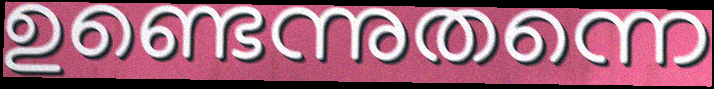
ഉണ്ടെന്നുതന്നെ